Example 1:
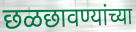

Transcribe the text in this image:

छळछावण्यांच्या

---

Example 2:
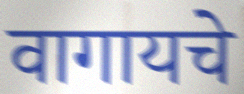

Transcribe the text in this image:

वागायचे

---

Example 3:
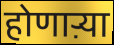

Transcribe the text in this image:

होणाऱ्‍या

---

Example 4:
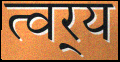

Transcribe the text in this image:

त्वर्य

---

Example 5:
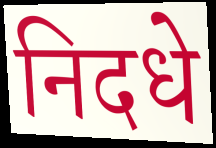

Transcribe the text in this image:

निदधे